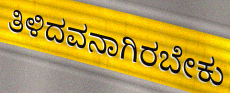
ತಿಳಿದವನಾಗಿರಬೇಕು